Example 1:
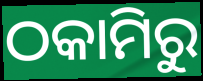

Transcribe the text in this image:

ଠକାମିରୁ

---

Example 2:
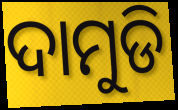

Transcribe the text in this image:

ଦାମୁଡି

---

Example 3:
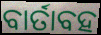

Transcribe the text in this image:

ବାର୍ତାବହ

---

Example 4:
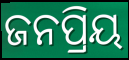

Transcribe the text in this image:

ଜନପ୍ରିୟ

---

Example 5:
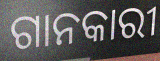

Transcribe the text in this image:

ଗାନକାରୀ